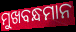
ମୁଖବନ୍ଧମାନ